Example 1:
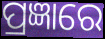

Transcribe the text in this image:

ପ୍ରଜ୍ଞାରେ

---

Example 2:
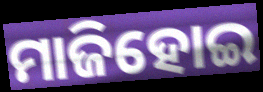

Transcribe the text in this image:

ମାଜିହୋଇ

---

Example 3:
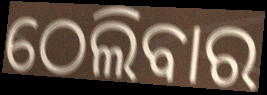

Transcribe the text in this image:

ଠେଲିବାର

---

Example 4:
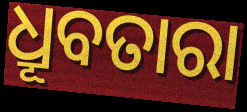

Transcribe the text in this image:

ଧ୍ରୂବତାରା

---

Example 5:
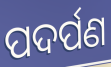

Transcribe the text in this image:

ପଦର୍ପଣ